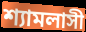
শ্যামলাসী